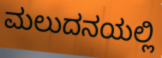
ಮಲುದನಯಲ್ಲಿ